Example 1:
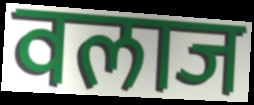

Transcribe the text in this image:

वलाज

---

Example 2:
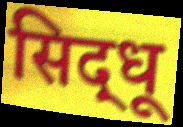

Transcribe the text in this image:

सिद्धू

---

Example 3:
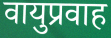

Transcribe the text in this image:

वायुप्रवाह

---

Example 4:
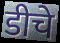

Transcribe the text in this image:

डीचे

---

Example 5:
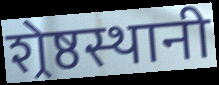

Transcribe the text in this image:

श्रेष्ठस्थानी